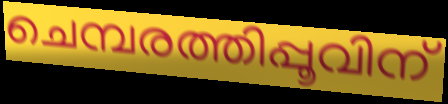
ചെമ്പരത്തിപ്പൂവിന്